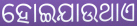
ହୋଇଯାଉଥାଏ